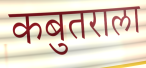
कबुतराला